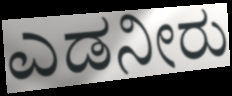
ಎಡನೀರು